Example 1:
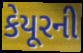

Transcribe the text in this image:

કેયૂરની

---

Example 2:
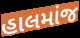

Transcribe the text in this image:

હાલમાંજ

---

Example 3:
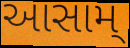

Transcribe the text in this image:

આસામ્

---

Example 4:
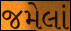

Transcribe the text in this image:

જમેલાં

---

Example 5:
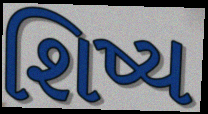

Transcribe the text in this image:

શિષ્ય